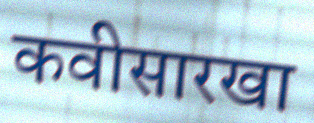
कवीसारखा